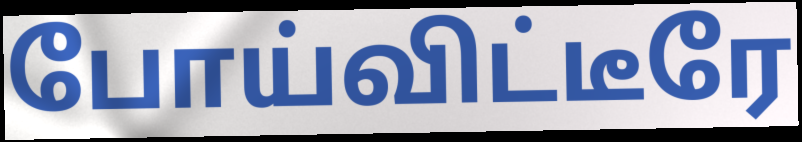
போய்விட்டீரே